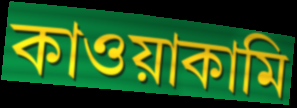
কাওয়াকামি